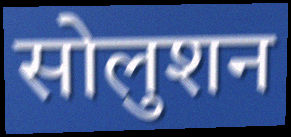
सोलुशन